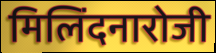
मिलिंदनारोजी